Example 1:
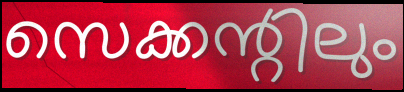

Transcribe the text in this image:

സെക്കന്റിലും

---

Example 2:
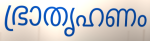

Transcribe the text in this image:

ഭ്രാതൃഹണം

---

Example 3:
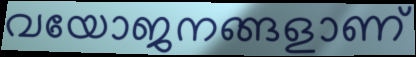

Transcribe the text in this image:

വയോജനങ്ങളാണ്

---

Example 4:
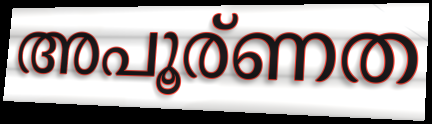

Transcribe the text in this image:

അപൂര്ണത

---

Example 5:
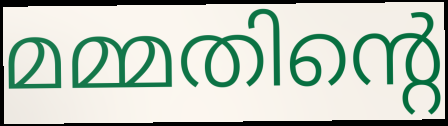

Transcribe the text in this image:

മമ്മതിന്റെ